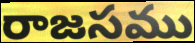
రాజసము